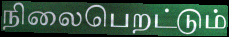
நிலைபெறட்டும்